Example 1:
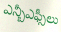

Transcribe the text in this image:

ఎన్బీఎఫ్సీలు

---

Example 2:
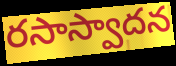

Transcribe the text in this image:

రసాస్వాదన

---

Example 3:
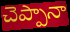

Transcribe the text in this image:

చెప్పానా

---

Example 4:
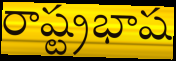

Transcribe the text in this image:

రాష్ట్రభాష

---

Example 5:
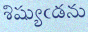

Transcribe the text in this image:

శిష్యుఁడను